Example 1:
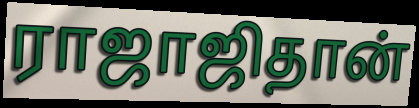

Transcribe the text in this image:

ராஜாஜிதான்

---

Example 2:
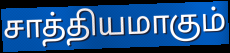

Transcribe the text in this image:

சாத்தியமாகும்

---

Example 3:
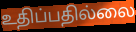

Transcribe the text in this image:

உதிப்பதில்லை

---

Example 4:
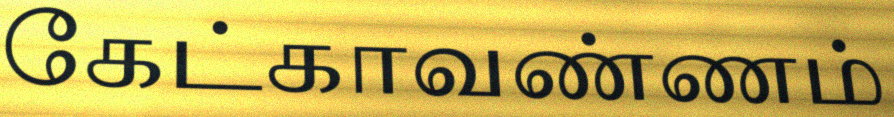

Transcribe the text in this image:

கேட்காவண்ணம்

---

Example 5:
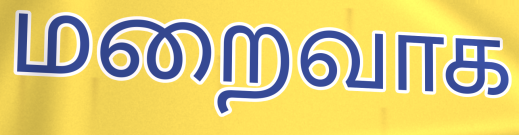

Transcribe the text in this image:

மறைவாக